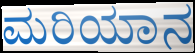
ಮರಿಯಾನ